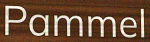
Pammel